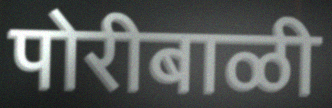
पोरीबाळी